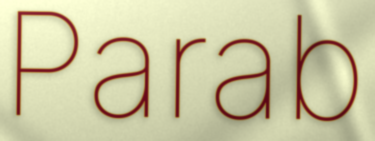
Parab